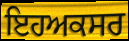
ਇਹਅਕਸਰ